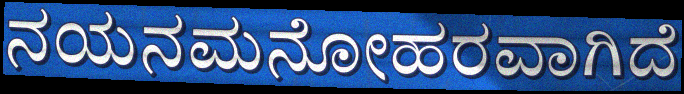
ನಯನಮನೋಹರವಾಗಿದೆ